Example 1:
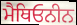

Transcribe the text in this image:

ਮੈਥਿਓਨੀਨ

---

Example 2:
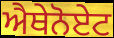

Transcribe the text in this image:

ਐਥੇਨੋਏਟ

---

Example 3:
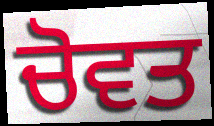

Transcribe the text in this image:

ਚੋਵਤ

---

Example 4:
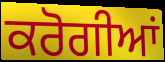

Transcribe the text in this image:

ਕਰੋਗੀਆਂ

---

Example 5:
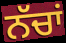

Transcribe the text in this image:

ਨੱਚਾਂ